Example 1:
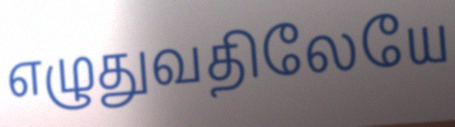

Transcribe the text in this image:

எழுதுவதிலேயே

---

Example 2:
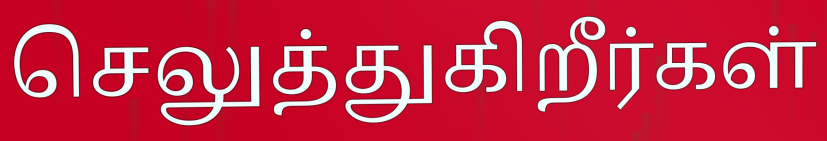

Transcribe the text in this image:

செலுத்துகிறீர்கள்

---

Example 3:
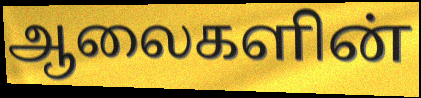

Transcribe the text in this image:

ஆலைகளின்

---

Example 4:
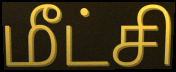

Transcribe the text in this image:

மீட்சி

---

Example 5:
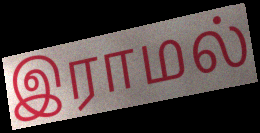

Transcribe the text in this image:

இராமல்